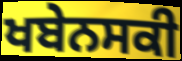
ਖਬੇਨਸਕੀ